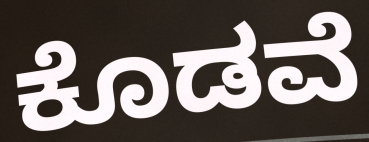
ಕೊಡವೆ